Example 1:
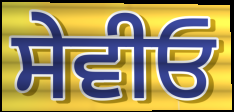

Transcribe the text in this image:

ਸੇਵੀਓ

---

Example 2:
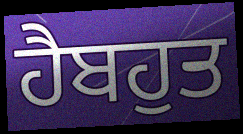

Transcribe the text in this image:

ਹੈਬਹੁਤ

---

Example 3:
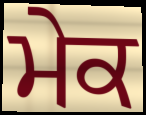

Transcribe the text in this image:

ਮੇਕ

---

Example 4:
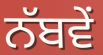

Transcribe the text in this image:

ਨੱਬਵੇਂ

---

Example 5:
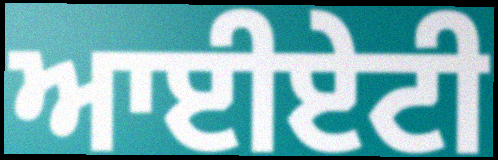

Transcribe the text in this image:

ਆਈਏਟੀ